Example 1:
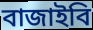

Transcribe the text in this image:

বাজাইবি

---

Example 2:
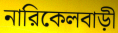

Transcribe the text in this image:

নারিকেলবাড়ী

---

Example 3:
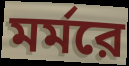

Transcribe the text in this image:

মর্মরে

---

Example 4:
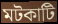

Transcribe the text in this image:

মটকাটি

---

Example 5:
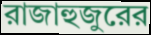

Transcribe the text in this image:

রাজাহুজুরের